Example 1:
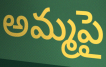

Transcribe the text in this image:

అమ్మపై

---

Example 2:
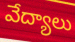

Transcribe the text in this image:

వేద్యాలు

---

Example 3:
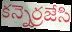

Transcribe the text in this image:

కన్నెర్రజేసి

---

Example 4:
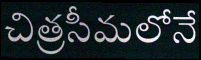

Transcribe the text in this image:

చిత్రసీమలోనే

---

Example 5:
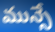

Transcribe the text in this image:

మున్సే